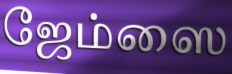
ஜேம்ஸை